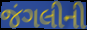
જંગલીની